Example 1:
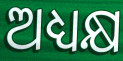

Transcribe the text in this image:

ଅଧ୍ୟକ୍ଷ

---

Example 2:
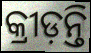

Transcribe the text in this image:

କ୍ରୀଡ଼ନ୍ତି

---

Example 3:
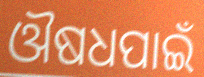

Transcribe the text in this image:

ଔଷଧପାଇଁ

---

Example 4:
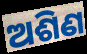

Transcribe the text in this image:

ଅଶିଣ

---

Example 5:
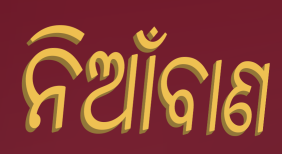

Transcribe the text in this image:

ନିଆଁବାଣ